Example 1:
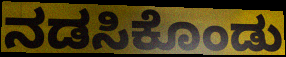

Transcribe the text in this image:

ನಡಸಿಕೊಂಡು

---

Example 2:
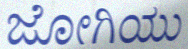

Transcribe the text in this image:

ಜೋಗಿಯು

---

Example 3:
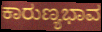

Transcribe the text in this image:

ಕಾರುಣ್ಯಭಾವ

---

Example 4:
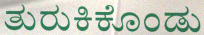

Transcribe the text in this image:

ತುರುಕಿಕೊಂಡು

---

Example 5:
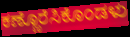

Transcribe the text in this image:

ಕಣ್ಣೊರೆಸಿಕೊಂಡಳು